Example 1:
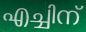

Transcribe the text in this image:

എച്ചിന്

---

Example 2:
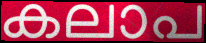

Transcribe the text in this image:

കലാപ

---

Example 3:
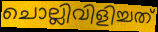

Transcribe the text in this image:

ചൊല്ലിവിളിച്ചത്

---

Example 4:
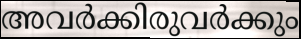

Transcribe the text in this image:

അവർക്കിരുവർക്കും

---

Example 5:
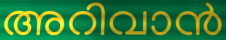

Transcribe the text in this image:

അറിവാൻ